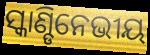
ସ୍କାଣ୍ଡିନେଭୀୟ